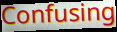
Confusing